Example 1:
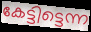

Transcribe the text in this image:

കേട്ടിട്ടെന്ന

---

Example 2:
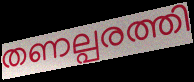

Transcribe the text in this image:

തണല്പരത്തി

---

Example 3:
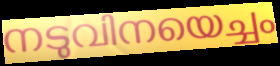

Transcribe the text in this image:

നടുവിനയെച്ചം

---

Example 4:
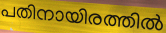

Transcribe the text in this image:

പതിനായിരത്തിൽ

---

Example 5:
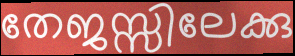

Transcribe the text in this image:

തേജസ്സിലേക്കു